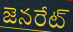
జెనరేట్